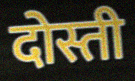
दोस्ती